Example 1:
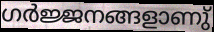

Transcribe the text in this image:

ഗർജ്ജനങ്ങളാണു്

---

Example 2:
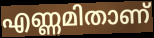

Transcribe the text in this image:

എണ്ണമിതാണ്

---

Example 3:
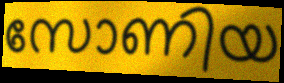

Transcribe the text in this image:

സോണിയ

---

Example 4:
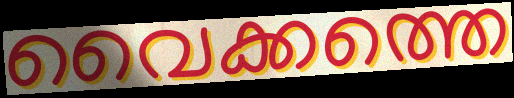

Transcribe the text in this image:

വൈക്കത്തെ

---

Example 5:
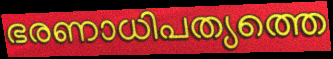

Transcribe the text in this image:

ഭരണാധിപത്യത്തെ